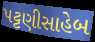
પટ્ટણીસાહેબ